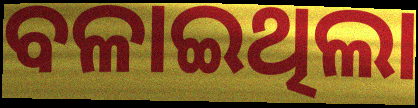
ବଳାଇଥିଲା